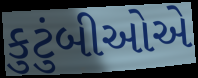
કુટુંબીઓએ